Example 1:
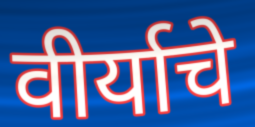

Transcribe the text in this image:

वीर्याचे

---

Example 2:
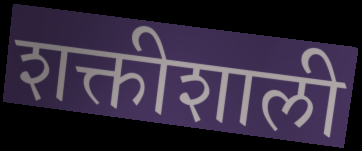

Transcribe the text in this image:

शक्तीशाली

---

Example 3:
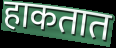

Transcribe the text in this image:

हाकतात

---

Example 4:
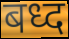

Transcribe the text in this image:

बध्द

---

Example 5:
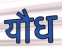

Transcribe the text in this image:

यौध